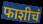
फाशीचं